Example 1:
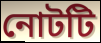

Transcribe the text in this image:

নোটটি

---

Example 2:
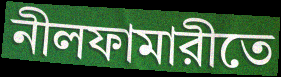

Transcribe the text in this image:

নীলফামারীতে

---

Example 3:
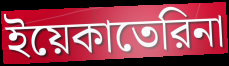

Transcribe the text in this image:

ইয়েকাতেরিনা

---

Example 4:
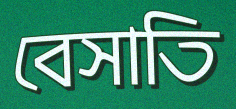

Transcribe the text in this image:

বেসাতি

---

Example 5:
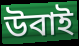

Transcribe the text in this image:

উবাই